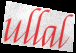
ullal